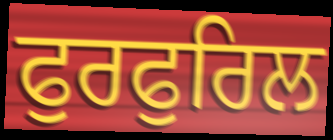
ਫੁਰਫੁਰਿਲ